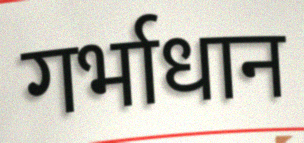
गर्भाधान